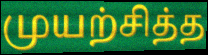
முயற்சித்த